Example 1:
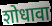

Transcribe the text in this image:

शोधावा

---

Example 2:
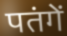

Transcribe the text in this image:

पतंगें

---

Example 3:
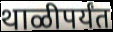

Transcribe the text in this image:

थाळीपर्यंत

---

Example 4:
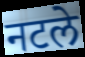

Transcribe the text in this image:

नटले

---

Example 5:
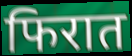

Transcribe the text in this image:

फिरात